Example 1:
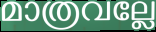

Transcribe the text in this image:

മാത്രവല്ലേ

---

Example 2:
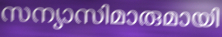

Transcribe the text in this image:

സന്യാസിമാരുമായി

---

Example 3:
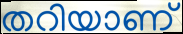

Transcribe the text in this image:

തറിയാണ്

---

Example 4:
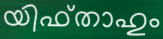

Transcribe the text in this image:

യിഫ്താഹും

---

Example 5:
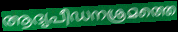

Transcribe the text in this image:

ആദ്യപീഡനശ്രമത്തെ